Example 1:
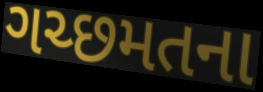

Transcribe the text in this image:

ગચ્છમતના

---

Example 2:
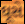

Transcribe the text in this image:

ઘૂસે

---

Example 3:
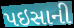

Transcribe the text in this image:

પઇસાની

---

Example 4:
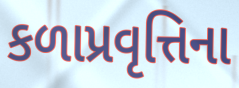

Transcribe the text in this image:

કળાપ્રવૃત્તિના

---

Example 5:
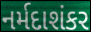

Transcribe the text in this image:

નર્મદાશંકર